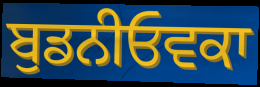
ਬੁਡਨੀਓਵਕਾ